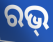
ରଭ୍